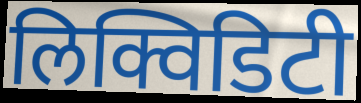
लिक्विडिटी